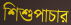
শিশুপাচার